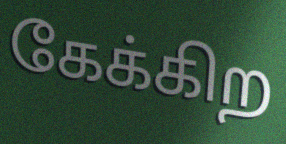
கேக்கிற